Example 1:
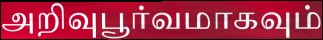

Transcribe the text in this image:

அறிவுபூர்வமாகவும்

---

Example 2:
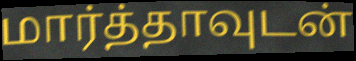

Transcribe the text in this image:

மார்த்தாவுடன்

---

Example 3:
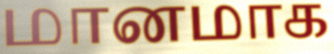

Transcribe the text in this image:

மானமாக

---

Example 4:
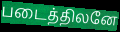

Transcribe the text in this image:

படைத்திலனே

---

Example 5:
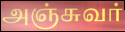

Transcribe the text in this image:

அஞ்சுவர்